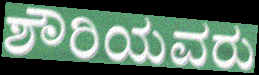
ಶೌರಿಯವರು